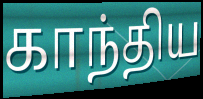
காந்திய